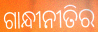
ଗାନ୍ଧୀନୀତିର